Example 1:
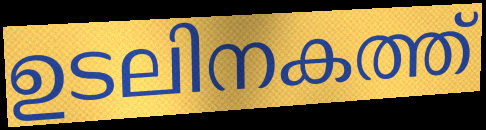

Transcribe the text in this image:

ഉടലിനകത്ത്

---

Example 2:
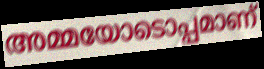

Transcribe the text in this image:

അമ്മയോടൊപ്പമാണ്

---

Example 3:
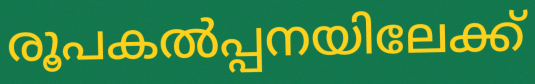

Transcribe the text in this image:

രൂപകൽപ്പനയിലേക്ക്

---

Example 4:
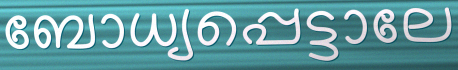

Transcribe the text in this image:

ബോധ്യപ്പെട്ടാലേ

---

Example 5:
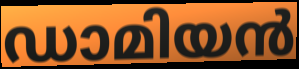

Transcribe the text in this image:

ഡാമിയൻ